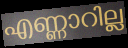
എണ്ണാറില്ല